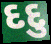
દદુ